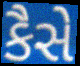
કૈસે